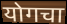
योगचा